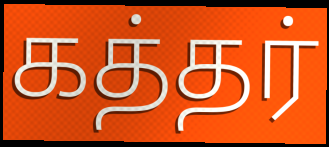
கத்தர்